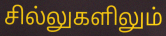
சில்லுகளிலும்